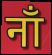
नाँ